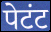
पेटंट